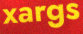
xargs